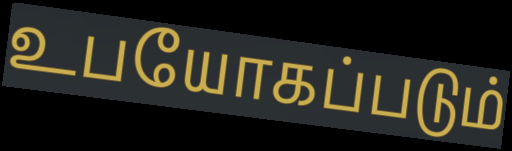
உபயோகப்படும்